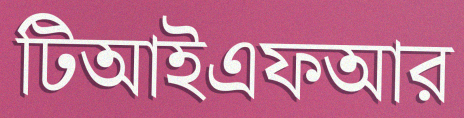
টিআইএফআর